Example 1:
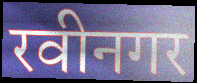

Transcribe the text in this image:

रवीनगर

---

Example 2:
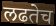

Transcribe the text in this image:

लढतेच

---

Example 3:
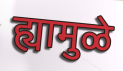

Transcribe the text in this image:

ह्यामुळे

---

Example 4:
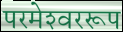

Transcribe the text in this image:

परमेश्वररूप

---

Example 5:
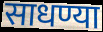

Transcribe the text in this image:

साधण्या